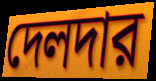
দেলদার